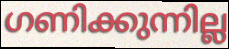
ഗണിക്കുന്നില്ല